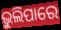
ଭୁଲିପାରେ